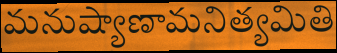
మనుష్యాణామనిత్యమితి